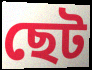
ছেট